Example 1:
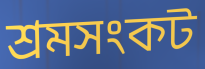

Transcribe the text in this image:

শ্রমসংকট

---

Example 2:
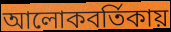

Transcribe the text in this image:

আলোকবর্তিকায়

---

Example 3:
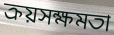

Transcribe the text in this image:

ক্রয়সক্ষমতা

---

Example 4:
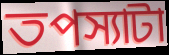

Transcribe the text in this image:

তপস্যাটা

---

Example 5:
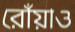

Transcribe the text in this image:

রোঁয়াও